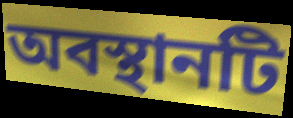
অবস্থানটি